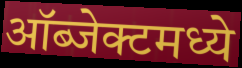
ऑब्जेक्टमध्ये